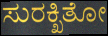
ಸುರಕ್ಖಿತೋ